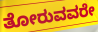
ತೋರುವವರೇ